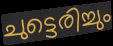
ചുട്ടെരിച്ചും